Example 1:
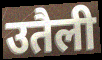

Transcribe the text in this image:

उतैली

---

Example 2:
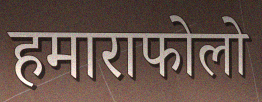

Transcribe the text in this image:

हमाराफोलो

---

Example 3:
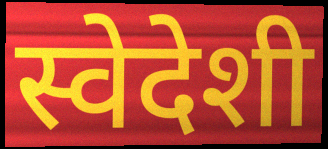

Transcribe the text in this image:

स्वेदेशी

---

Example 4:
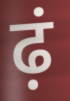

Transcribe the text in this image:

ढ़ं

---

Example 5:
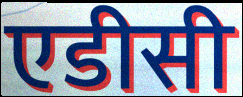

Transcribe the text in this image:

एडीसी